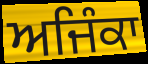
ਅਜਿੰਕਾ